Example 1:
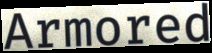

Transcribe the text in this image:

Armored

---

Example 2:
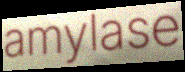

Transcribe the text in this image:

amylase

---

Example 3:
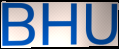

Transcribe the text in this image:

BHU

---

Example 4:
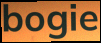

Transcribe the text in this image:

bogie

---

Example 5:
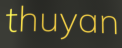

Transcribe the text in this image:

thuyan